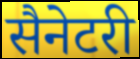
सैनेटरी